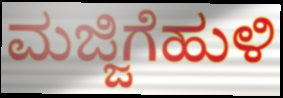
ಮಜ್ಜಿಗೆಹುಳಿ